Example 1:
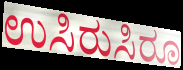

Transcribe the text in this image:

ಉಸಿರುಸಿರೂ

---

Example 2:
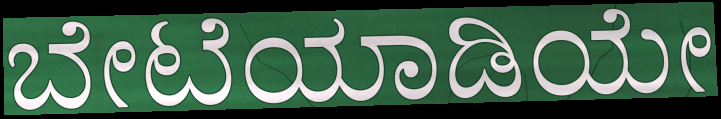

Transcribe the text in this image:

ಬೇಟೆಯಾಡಿಯೇ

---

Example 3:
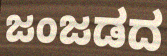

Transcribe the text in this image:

ಜಂಜಡದ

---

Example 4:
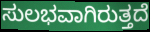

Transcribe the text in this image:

ಸುಲಭವಾಗಿರುತ್ತದೆ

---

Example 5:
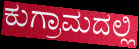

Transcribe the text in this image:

ಕುಗ್ರಾಮದಲ್ಲಿ